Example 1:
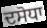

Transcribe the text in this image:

ਦਸੋਧਾ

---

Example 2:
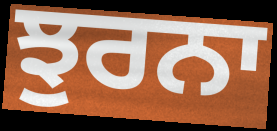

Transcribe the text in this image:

ਝੁਰਨਾ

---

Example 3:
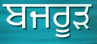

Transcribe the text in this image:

ਬਜਰੂੜ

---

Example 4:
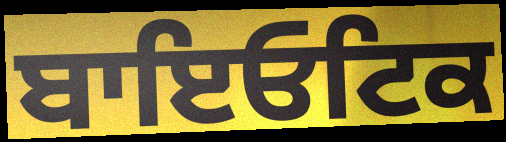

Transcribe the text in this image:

ਬਾਇਓਟਿਕ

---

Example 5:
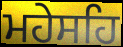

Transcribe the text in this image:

ਮਹੇਸਹਿ